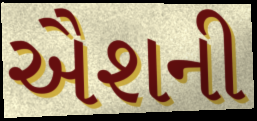
ઐશની